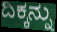
ದಿಕ್ಕನ್ನು